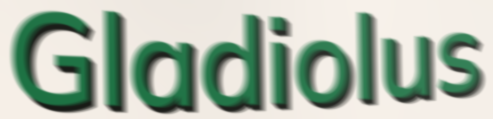
Gladiolus